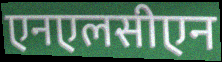
एनएलसीएन